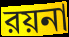
রয়না